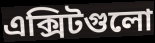
এক্সিটগুলো